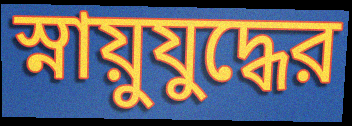
স্নায়ুযুদ্ধের